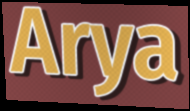
Arya